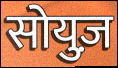
सोयुज़